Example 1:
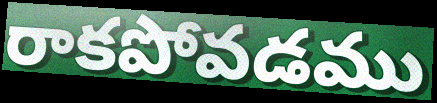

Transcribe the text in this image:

రాకపోవడము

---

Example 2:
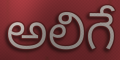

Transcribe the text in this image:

అలిగే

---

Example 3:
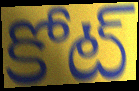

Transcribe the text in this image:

కోట్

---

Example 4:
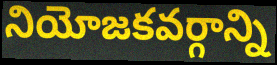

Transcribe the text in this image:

నియోజకవర్గాన్ని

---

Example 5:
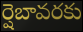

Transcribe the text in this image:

ర్షెబావరకు